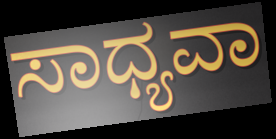
ಸಾಧ್ಯವಾ